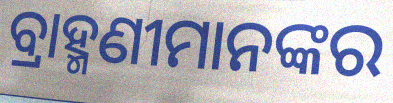
ବ୍ରାହ୍ମଣୀମାନଙ୍କର